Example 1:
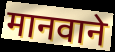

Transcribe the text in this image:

मानवाने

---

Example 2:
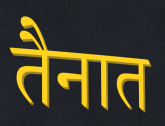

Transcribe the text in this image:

तैनात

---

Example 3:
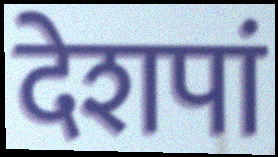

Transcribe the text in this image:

देशपां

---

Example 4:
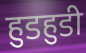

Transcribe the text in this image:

हुडहुडी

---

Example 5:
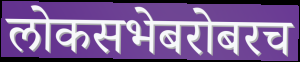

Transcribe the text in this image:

लोकसभेबरोबरच